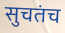
सुचतंच